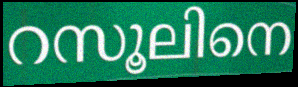
റസൂലിനെ